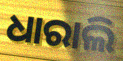
ଧାରାଲି